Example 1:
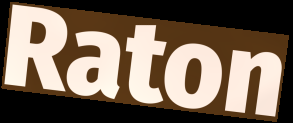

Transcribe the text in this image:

Raton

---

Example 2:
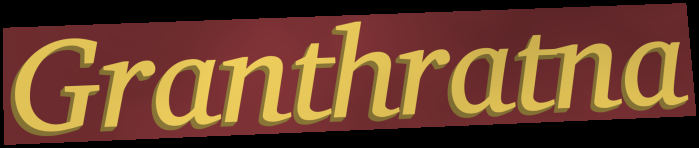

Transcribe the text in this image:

Granthratna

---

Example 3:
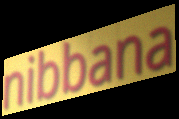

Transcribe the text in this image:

nibbana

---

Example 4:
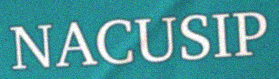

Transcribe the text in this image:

NACUSIP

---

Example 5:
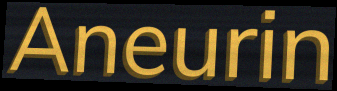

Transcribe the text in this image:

Aneurin